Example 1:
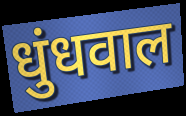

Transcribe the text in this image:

धुंधवाल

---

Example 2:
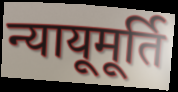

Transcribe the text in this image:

न्यायूमूर्ति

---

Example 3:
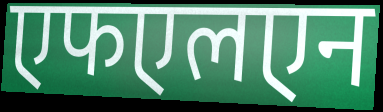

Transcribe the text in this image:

एफएलएन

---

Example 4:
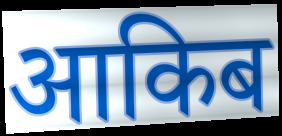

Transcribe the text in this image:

आकिब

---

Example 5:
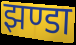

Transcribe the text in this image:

झण्डा